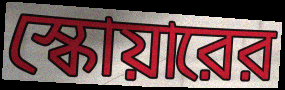
স্কোয়ারের